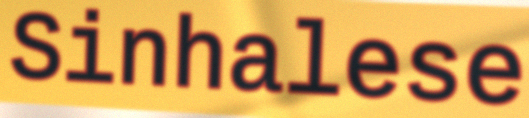
Sinhalese